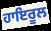
ਹਾਇਰੂਲ